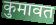
कुमावत